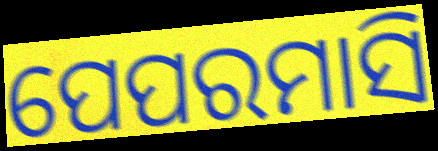
ପେପରମାସି